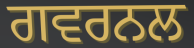
ਗਵਰਨਲ